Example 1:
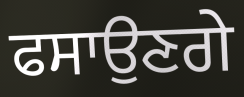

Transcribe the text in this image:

ਫਸਾਉਣਗੇ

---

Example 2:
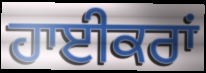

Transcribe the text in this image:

ਹਾਈਕਰਾਂ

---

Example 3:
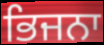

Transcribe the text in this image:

ਭਿਜਨਾ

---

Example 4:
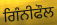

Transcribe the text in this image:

ਗਿੰਨੀਫੌਲ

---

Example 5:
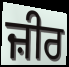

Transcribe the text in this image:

ਜ਼ੀਰ